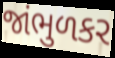
જાંભુળકર